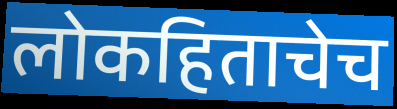
लोकहिताचेच